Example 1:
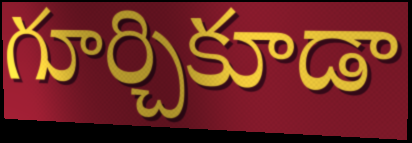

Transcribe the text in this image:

గూర్చికూడా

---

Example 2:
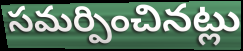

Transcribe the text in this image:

సమర్పించినట్లు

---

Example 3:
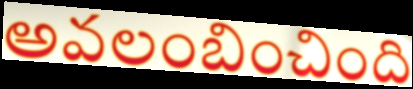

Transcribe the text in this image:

అవలంబించింది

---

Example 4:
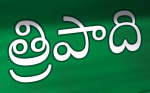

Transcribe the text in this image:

త్రిపాది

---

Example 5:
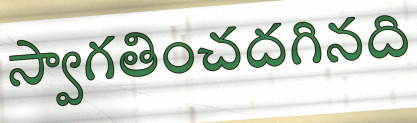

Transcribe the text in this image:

స్వాగతించదగినది